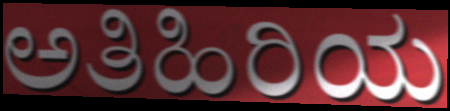
ಅತಿಹಿರಿಯ